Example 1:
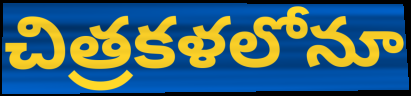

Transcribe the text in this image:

చిత్రకళలోనూ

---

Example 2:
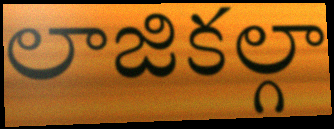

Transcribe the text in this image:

లాజికల్గా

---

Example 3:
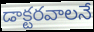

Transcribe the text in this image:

డాక్టరవాలనే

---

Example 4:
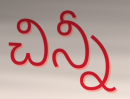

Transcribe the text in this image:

చిన్నీ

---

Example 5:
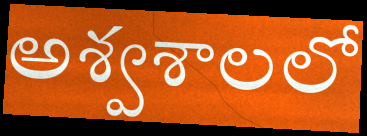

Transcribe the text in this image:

అశ్వశాలలో